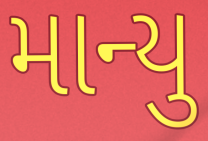
માન્યુ